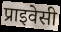
प्राइवेसी